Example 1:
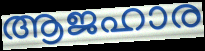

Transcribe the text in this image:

ആജഹാര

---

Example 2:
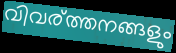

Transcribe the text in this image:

വിവര്ത്തനങ്ങളും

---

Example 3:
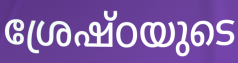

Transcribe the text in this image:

ശ്രേഷ്ഠയുടെ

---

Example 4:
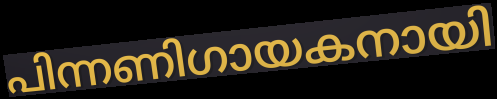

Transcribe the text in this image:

പിന്നണിഗായകനായി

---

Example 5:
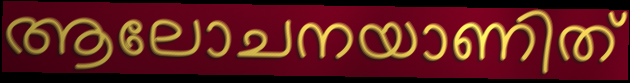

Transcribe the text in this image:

ആലോചനയാണിത്